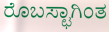
ರೊಬಸ್ಟಾಗಿಂತ